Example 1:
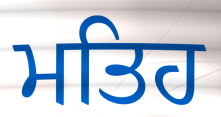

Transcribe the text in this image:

ਮਤਿਹ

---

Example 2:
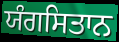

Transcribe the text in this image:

ਯੰਗਸਿਤਾਨ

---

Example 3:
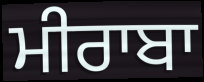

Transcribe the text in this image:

ਮੀਰਾਬਾ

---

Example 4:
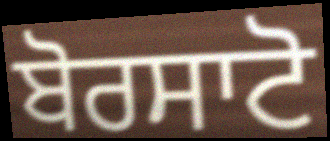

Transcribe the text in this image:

ਬੋਰਸਾਟੋ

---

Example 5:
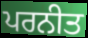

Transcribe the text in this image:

ਪਰਨੀਤ